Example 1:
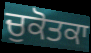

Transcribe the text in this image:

ਚੁਕੋਤਕਾ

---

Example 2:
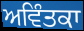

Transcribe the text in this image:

ਅਵਿੰਤਕਾ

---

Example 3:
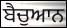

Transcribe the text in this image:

ਬੈਚੁਆਨ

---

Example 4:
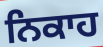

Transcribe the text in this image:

ਨਿਕਾਹ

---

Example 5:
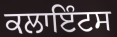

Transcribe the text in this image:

ਕਲਾਇੰਟਸ